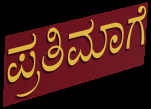
ಪ್ರತಿಮಾಗೆ